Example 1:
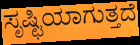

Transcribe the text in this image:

ಸೃಷ್ಟಿಯಾಗುತ್ತದೆ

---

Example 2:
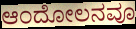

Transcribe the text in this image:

ಆಂದೋಲನವೂ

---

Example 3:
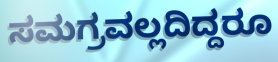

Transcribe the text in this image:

ಸಮಗ್ರವಲ್ಲದಿದ್ದರೂ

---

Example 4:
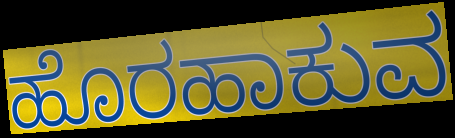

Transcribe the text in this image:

ಹೊರಹಾಕುವ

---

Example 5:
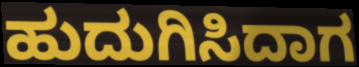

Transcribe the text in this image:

ಹುದುಗಿಸಿದಾಗ